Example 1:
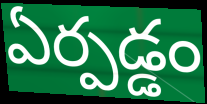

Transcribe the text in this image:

ఏర్పడ్డం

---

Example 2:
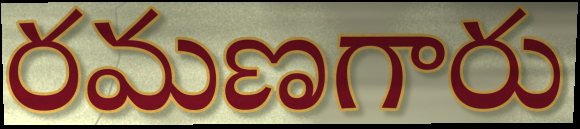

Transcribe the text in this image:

రమణగారు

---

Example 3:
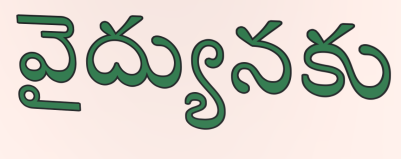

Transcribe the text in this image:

వైద్యునకు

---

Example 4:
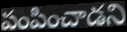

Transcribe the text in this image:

పంపించాడని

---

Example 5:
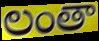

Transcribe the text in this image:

లంతా